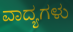
ವಾದ್ಯಗಳು